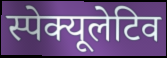
स्पेक्यूलेटिव